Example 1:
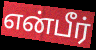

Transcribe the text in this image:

என்பீர்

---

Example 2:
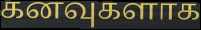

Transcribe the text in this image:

கனவுகளாக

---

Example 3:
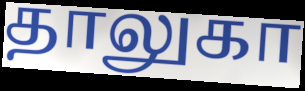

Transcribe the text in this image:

தாலுகா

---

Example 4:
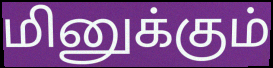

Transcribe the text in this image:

மினுக்கும்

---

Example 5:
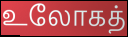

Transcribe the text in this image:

உலோகத்